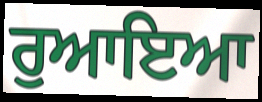
ਰੁਆਇਆ